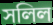
সলিল